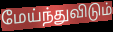
மேய்ந்துவிடும்